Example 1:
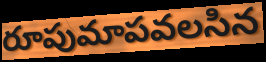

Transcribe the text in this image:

రూపుమాపవలసిన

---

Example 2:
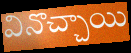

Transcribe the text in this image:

వినొచ్చాయి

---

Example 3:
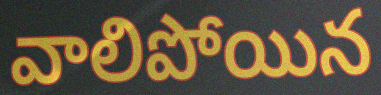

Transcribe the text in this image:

వాలిపోయిన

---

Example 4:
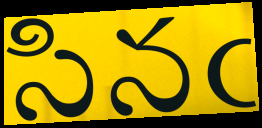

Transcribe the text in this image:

సినఁ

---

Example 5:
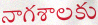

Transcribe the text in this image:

నాగశాలకు